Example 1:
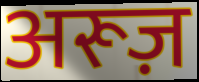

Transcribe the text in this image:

अरूज़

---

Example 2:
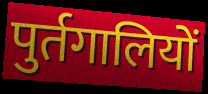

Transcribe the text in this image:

पुर्तगालियों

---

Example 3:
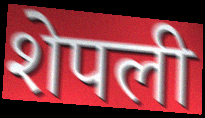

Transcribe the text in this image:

शेपली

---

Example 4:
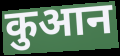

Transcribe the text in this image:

कुआन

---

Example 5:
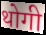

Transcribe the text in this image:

थोगी